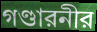
গণ্ডারনীর